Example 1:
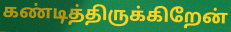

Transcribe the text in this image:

கண்டித்திருக்கிறேன்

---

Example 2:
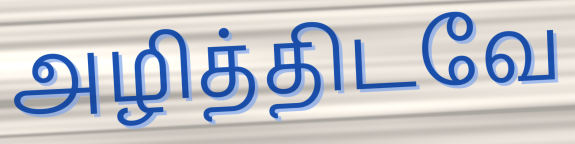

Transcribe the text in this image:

அழித்திடவே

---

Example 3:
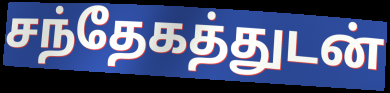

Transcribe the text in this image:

சந்தேகத்துடன்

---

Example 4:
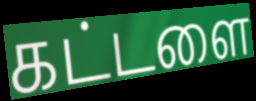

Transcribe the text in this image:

கட்டளை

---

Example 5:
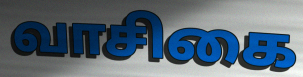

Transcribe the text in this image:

வாசிகை